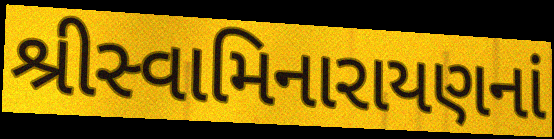
શ્રીસ્વામિનારાયણનાં